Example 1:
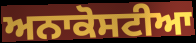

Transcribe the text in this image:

ਅਨਾਕੋਸਟੀਆ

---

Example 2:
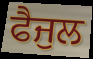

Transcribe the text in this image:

ਫੈਜੁਲ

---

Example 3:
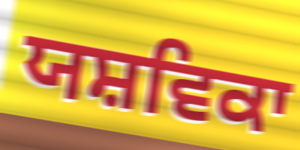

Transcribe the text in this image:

ਯਸ਼ਵਿਕਾ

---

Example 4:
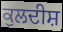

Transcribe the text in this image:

ਕੁਲਦੀਸ਼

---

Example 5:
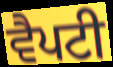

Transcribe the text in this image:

ਵੈਪਟੀ